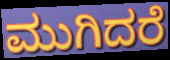
ಮುಗಿದರೆ